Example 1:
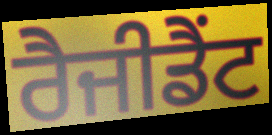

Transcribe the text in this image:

ਰੈਜੀਡੈਂਟ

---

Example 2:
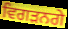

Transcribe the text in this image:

ਵਿਗੜਨਗੇ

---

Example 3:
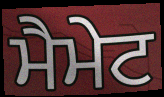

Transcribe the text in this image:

ਮੈਮੇਟ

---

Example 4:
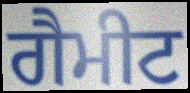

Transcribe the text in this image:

ਗੈਮੀਟ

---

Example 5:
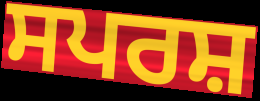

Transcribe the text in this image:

ਸਪਰਸ਼